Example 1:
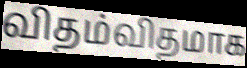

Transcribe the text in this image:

விதம்விதமாக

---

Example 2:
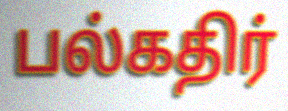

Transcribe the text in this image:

பல்கதிர்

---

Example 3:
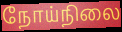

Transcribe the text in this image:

நோய்நிலை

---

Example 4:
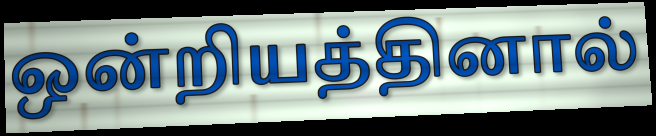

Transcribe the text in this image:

ஒன்றியத்தினால்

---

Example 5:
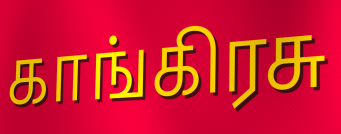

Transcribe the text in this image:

காங்கிரசு